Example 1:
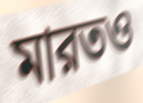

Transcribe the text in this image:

মারতও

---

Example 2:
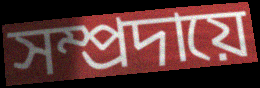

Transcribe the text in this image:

সম্প্রদায়ে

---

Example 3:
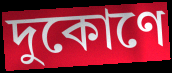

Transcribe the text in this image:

দুকোণে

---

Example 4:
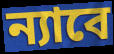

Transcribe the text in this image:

ন্যাবে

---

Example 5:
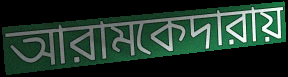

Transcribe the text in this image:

আরামকেদারায়